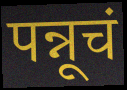
पन्नूचं